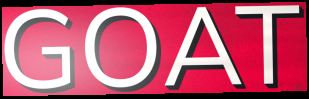
GOAT